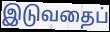
இடுவதைப்